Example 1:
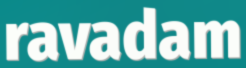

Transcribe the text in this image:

ravadam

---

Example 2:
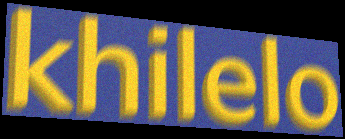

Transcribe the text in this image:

khilelo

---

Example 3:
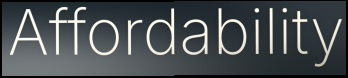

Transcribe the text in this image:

Affordability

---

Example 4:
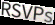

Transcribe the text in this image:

RSVPs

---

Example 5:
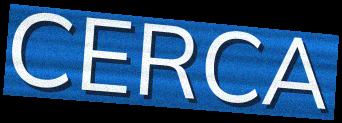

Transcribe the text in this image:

CERCA